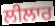
ਲੀਲਾਰ